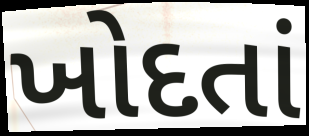
ખોદતાં